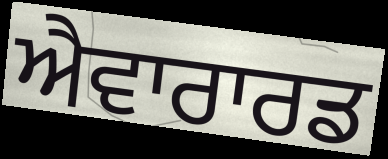
ਐਵਾਰਾਰਡ